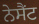
ਨੇਸੈਂਟ